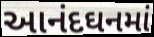
આનંદઘનમાં